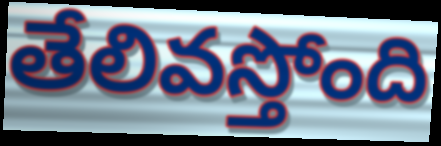
తేలివస్తోంది